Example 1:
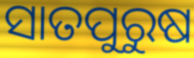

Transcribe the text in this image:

ସାତପୁରୁଷ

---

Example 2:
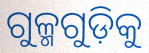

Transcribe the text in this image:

ଗୁଳ୍ମଗୁଡ଼ିକୁ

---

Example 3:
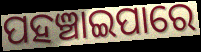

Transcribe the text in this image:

ପହଞ୍ଚାଇପାରେ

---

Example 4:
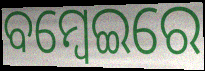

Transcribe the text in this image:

ବମ୍ବେଇରେ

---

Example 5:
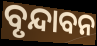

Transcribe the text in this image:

ବୃନ୍ଦାବନ